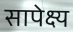
सापेक्ष्य